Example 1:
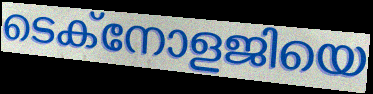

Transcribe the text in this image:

ടെക്‌നോളജിയെ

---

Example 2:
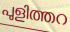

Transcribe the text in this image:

പുളിത്തറ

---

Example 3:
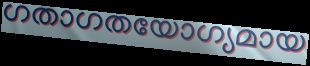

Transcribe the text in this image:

ഗതാഗതയോഗ്യമായ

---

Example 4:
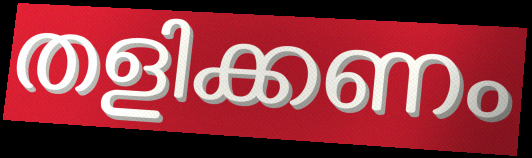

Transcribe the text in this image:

തളിക്കണം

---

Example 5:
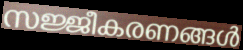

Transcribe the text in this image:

സജ്ജീകരണങ്ങൾ